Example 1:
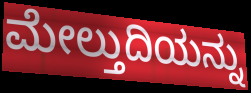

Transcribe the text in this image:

ಮೇಲ್ತುದಿಯನ್ನು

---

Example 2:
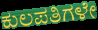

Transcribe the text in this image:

ಕುಲಪತಿಗಳೇ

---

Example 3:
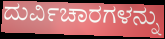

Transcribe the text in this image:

ದುರ್ವಿಚಾರಗಳನ್ನು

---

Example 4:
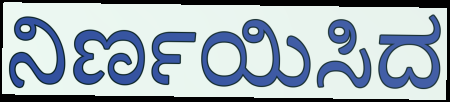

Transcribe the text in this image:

ನಿರ್ಣಯಿಸಿದ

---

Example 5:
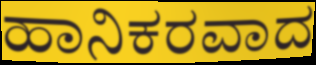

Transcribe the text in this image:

ಹಾನಿಕರವಾದ